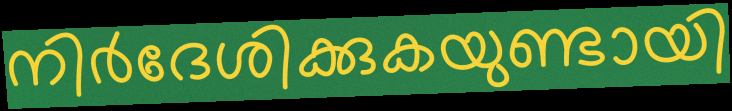
നിർദേശിക്കുകയുണ്ടായി